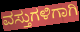
ವಸ್ತುಗಳಿಗಾಗಿ